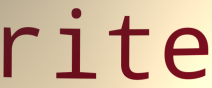
rite